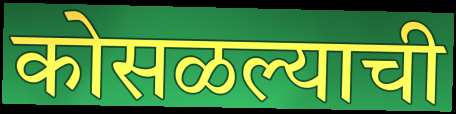
कोसळल्याची